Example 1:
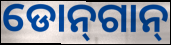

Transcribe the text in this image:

ଡୋନ୍‌ଗାନ୍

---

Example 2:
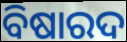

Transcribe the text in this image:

ବିଷାରଦ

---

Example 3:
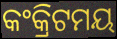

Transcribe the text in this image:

କଂକ୍ରିଟମୟ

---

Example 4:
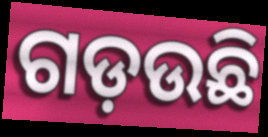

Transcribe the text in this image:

ଗଡ଼ଉଛି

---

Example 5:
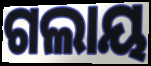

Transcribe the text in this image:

ଗଲାୟ